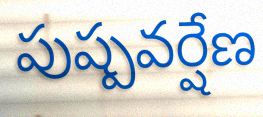
పుష్పవర్షేణ